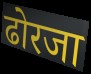
ढोरजा